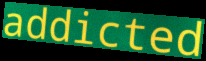
addicted